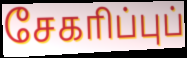
சேகரிப்புப்